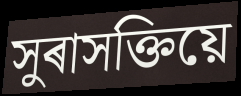
সুৰাসক্তিয়ে